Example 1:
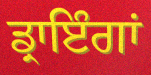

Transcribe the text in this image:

ਡ੍ਰਾਇੰਗਾਂ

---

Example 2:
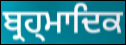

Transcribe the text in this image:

ਬ੍ਰਹ੍ਮਾਦਿਕ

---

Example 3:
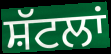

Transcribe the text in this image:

ਸ਼ੱਟਲਾਂ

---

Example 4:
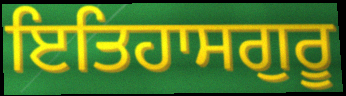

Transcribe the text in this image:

ਇਤਿਹਾਸਗੁਰੂ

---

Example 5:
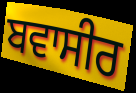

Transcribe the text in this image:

ਬਵਾਸੀਰ